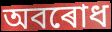
অবৰোধ